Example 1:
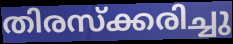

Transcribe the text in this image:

തിരസ്ക്കരിച്ചു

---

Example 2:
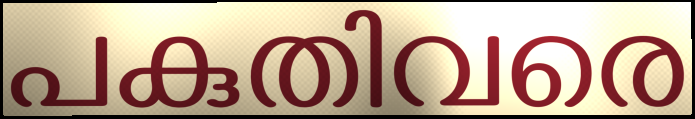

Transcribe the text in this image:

പകുതിവരെ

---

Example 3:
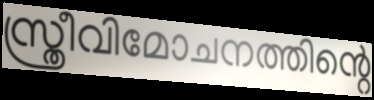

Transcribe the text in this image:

സ്ത്രീവിമോചനത്തിന്റെ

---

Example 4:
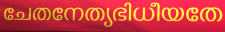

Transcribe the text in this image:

ചേതനേത്യഭിധീയതേ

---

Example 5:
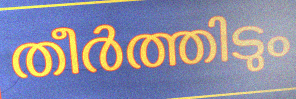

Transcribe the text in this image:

തീർത്തിടും